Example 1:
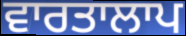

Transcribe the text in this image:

ਵਾਰਤਾਲਾਪ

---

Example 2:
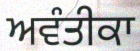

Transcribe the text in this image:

ਅਵੰਤੀਕਾ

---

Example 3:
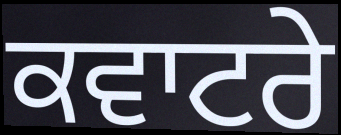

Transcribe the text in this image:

ਕਵਾਟਰੇ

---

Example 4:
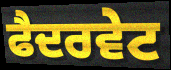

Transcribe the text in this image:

ਫੈਦਰਵੇਟ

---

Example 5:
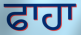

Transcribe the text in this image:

ਫਾਹਾ